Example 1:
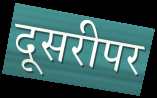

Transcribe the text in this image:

दूसरीपर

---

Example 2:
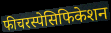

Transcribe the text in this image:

फीचरस्पेसिफिकेशन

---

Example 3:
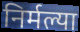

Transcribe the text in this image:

निर्मल्या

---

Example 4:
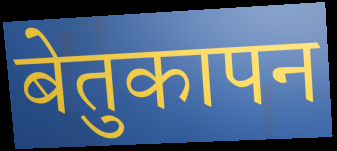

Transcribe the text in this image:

बेतुकापन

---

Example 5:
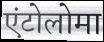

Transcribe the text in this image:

एंटोलोमा